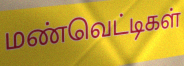
மண்வெட்டிகள்